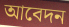
আবেদন